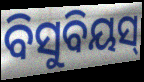
ବିସୁବିୟସ୍